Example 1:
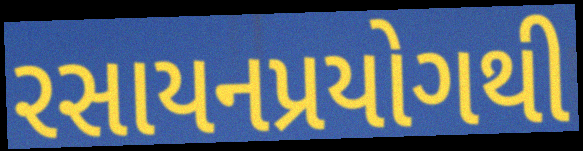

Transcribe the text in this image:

રસાયનપ્રયોગથી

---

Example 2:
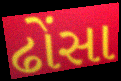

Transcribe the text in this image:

ઢોંસા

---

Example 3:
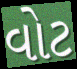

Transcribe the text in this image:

વોટ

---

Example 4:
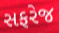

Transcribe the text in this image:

સફરેજ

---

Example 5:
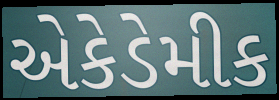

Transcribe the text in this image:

એકેડેમીક